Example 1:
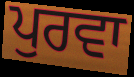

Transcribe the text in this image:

ਪੁਰਵਾ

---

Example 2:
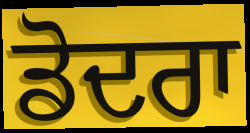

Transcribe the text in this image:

ਡੋਦਰਾ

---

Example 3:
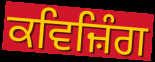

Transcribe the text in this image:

ਕਵਿਜ਼ਿੰਗ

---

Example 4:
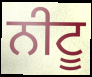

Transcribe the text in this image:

ਨੀਟੂ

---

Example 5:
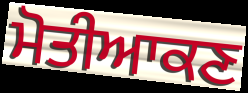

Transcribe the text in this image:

ਮੋਤੀਆਕਣ